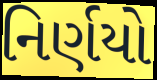
નિર્ણયો